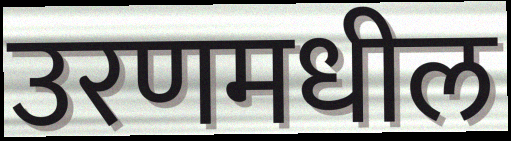
उरणमधील